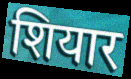
शियार